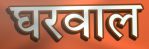
घरवाल